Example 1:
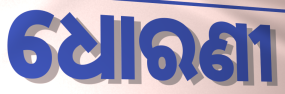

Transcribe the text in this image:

ଧୋରଣୀ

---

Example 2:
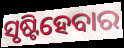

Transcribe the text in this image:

ସୃଷ୍ଟିହେବାର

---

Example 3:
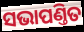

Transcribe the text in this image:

ସଭାପଣ୍ତିତ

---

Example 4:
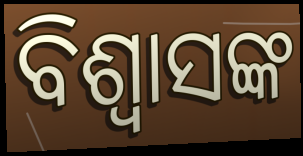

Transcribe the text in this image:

ବିଶ୍ୱାସଙ୍କ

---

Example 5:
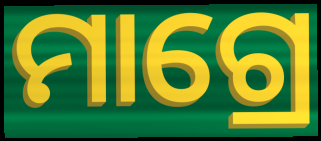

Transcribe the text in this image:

ମାଗ୍ରେ